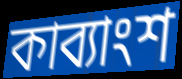
কাব্যাংশ